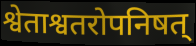
श्वेताश्वतरोपनिषत्